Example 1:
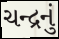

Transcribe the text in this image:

ચન્દ્રનું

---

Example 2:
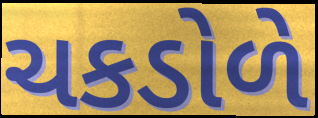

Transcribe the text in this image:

ચકડોળે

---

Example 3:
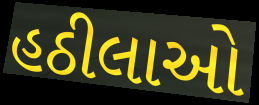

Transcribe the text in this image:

હઠીલાઓ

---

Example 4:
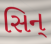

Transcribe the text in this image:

સિન્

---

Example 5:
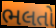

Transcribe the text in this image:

ભલતો